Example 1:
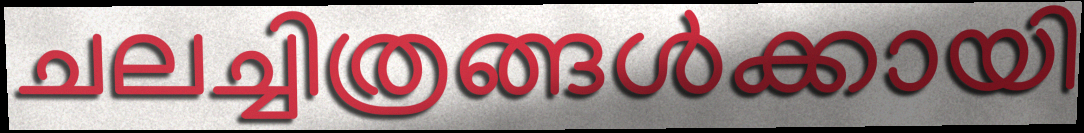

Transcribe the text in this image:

ചലച്ചിത്രങ്ങൾക്കായി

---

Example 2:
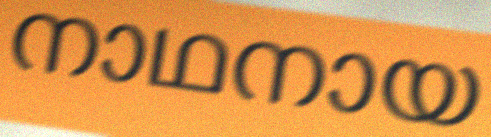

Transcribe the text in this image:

നാഥനായ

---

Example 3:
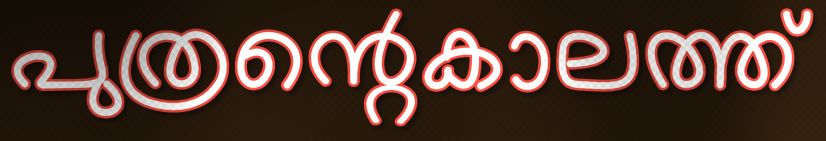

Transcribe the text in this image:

പുത്രന്റെകാലത്ത്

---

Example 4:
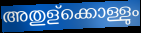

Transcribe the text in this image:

അതുള്ക്കൊള്ളും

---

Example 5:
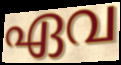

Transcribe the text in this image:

ഏവ